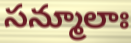
సన్మూలాః